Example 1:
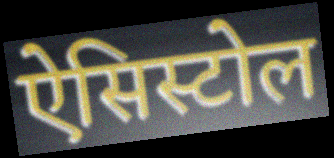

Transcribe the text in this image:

ऐसिस्टोल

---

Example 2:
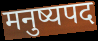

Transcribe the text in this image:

मनुष्यपद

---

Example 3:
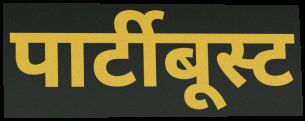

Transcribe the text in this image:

पार्टीबूस्ट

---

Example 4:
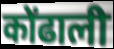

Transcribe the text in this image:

कोंढाली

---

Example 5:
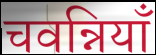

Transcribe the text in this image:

चवन्नियाँ